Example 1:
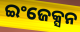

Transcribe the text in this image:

ଇଂଜେକ୍ସନ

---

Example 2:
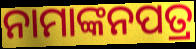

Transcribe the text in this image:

ନାମାଙ୍କନପତ୍ର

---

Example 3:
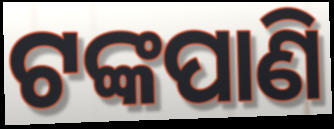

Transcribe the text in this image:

ଟଙ୍କପାଣି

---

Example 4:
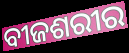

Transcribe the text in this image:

ବୀଜଶରୀର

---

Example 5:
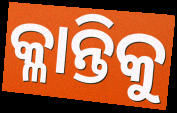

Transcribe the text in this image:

କ୍ଳାନ୍ତିକୁ